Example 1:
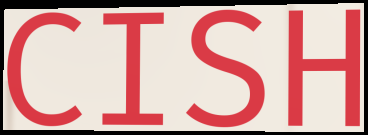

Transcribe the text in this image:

CISH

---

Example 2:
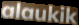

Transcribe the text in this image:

alaukik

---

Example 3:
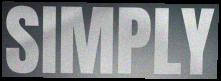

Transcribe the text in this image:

SIMPLY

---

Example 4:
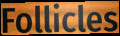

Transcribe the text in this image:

Follicles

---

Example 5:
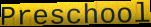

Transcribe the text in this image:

Preschool